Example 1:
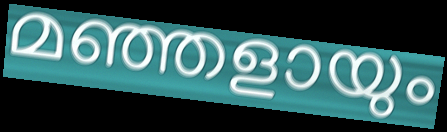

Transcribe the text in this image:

മഞ്ഞളായും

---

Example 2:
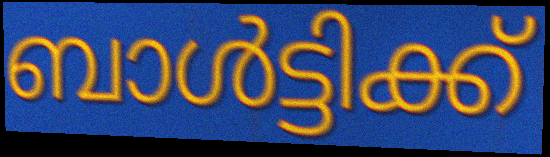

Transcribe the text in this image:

ബാൾട്ടിക്ക്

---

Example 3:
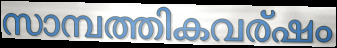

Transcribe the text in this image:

സാമ്പത്തികവര്ഷം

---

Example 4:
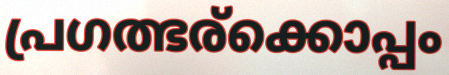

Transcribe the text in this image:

പ്രഗത്ഭര്ക്കൊപ്പം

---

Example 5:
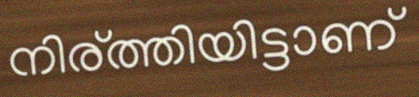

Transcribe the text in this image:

നിര്ത്തിയിട്ടാണ്